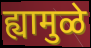
ह्यामुळे